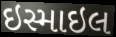
ઇસ્માઇલ